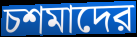
চশমাদের